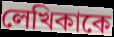
লেখিকাকে